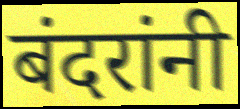
बंदरांनी